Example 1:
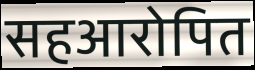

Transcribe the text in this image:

सहआरोपित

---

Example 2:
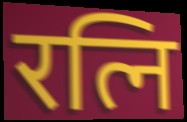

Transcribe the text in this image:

रत्नि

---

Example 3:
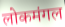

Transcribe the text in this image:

लोकमंगल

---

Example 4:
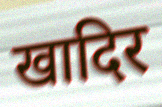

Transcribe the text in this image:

खादिर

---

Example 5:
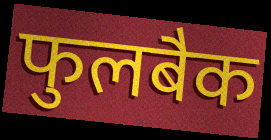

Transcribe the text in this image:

फुलबैक